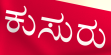
ಕುಸುರು